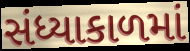
સંધ્યાકાળમાં